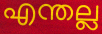
എന്തല്ല